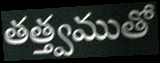
తత్త్వముతో